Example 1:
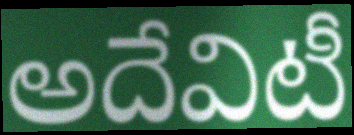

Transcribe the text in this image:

అదేవిటీ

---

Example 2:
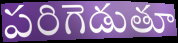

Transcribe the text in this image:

పరిగెడుతూ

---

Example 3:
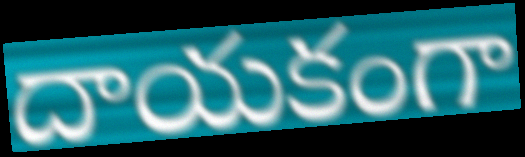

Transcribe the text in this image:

దాయకంగా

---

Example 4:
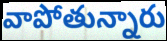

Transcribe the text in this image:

వాపోతున్నారు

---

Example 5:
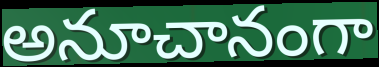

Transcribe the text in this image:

అనూచానంగా